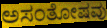
ಅಸಂತೋಷವು